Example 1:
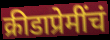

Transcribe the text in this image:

क्रीडाप्रेमींचं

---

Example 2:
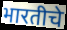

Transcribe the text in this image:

भारतीचे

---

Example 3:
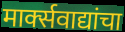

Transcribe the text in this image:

मार्क्‍सवाद्यांचा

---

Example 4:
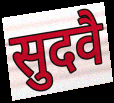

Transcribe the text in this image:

सुदवै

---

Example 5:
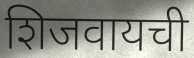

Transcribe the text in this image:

शिजवायची